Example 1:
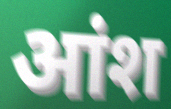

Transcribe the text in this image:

आंश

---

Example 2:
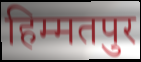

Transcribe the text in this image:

हिम्मतपुर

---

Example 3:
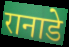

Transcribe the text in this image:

रानाडे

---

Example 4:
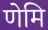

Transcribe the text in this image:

णेमि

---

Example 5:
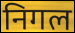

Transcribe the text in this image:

निगल